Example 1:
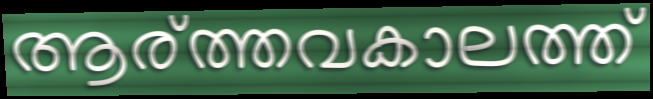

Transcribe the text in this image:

ആര്ത്തവകാലത്ത്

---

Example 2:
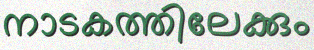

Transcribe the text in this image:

നാടകത്തിലേക്കും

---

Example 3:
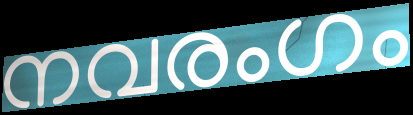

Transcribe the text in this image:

നവരംഗം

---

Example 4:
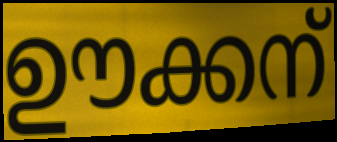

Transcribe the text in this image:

ഊക്കന്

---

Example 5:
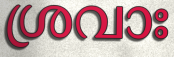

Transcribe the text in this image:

ശ്രവാഃ